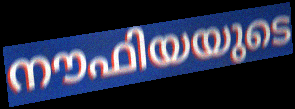
നൗഫിയയുടെ